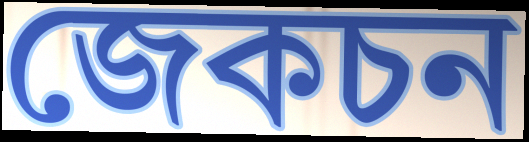
জেকচন